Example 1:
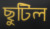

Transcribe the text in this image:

ছুটিল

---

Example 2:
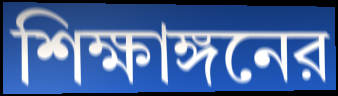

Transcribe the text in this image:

শিক্ষাঙ্গনের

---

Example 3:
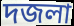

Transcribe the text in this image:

দজলা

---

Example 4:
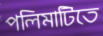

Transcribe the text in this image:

পলিমাটিতে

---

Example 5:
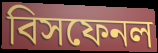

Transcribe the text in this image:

বিসফেনল